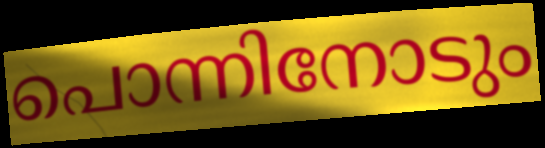
പൊന്നിനോടും